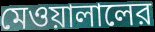
মেওয়ালালের